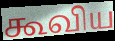
கூவிய